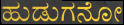
ಹುಡುಗನೋ